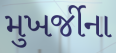
મુખર્જીના